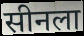
सीनला